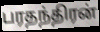
பரதந்திரன்